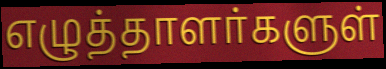
எழுத்தாளர்களுள்